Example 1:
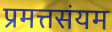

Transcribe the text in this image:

प्रमत्तसंयम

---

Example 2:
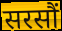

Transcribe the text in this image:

सरसौं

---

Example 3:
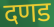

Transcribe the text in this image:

दणड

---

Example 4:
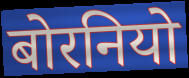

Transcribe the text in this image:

बोरनियो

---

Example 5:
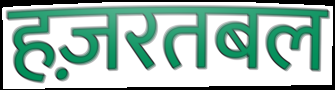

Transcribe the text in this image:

हज़रतबल